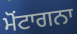
ਮੋਂਟਾਗਨਾ